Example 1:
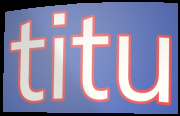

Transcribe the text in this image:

titu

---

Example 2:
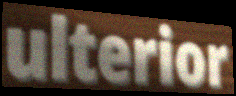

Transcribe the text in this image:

ulterior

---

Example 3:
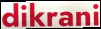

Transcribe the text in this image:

dikrani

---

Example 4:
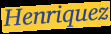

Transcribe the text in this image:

Henriquez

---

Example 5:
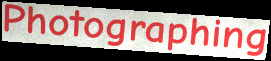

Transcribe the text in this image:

Photographing